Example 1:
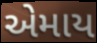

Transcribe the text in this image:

એમાય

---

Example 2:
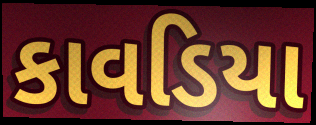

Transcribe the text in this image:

કાવડિયા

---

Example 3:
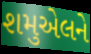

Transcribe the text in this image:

શમુએલને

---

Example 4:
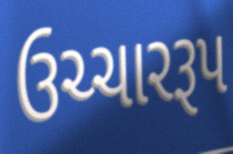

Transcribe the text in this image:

ઉચ્ચારરૂપ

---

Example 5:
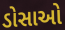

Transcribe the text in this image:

ડોસાઓ